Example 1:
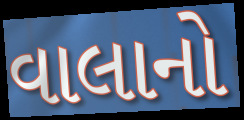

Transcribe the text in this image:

વાલાનો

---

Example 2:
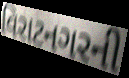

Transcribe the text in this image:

વિરાટનગરની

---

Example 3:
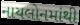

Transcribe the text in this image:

નાયલોનમાંથી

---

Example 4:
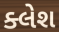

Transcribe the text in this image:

ક્લેશ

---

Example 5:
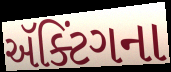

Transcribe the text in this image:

ઍક્ટિંગના